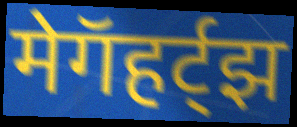
मेगॅहर्ट्‌झ